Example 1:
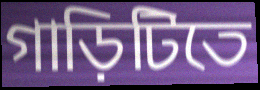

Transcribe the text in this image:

গাড়িটিতে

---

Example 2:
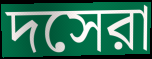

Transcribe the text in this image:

দসেরা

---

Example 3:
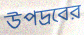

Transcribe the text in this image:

উপদ্রবের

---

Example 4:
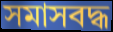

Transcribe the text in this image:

সমাসবদ্ধ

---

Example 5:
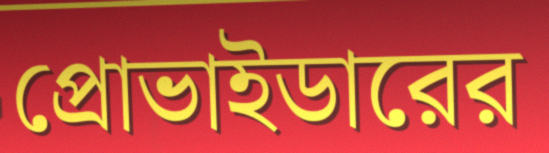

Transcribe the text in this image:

প্রোভাইডারের